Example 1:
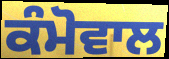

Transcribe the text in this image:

ਕੰਮੋਵਾਲ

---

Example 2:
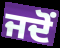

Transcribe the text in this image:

ਜਦੋਂ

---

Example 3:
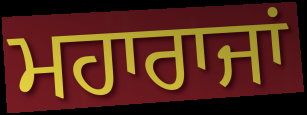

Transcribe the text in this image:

ਮਹਾਰਾਜਾਂ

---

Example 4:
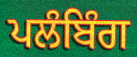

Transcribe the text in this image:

ਪਲੰਬਿੰਗ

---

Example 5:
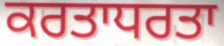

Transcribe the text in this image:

ਕਰਤਾਧਰਤਾ